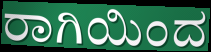
ರಾಗಿಯಿಂದ